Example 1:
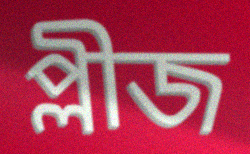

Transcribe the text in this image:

প্লীজ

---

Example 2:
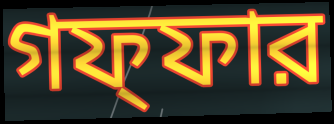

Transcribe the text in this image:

গফ্ফার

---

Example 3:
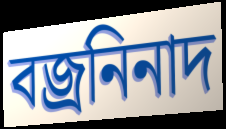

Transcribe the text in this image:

বজ্রনিনাদ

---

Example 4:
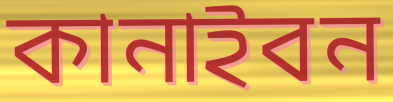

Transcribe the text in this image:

কানাইবন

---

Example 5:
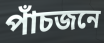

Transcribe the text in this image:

পাঁচজনে